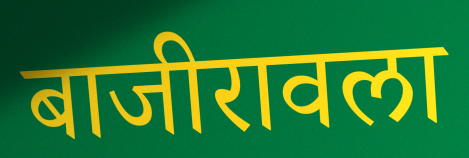
बाजीरावला